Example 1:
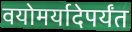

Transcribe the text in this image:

वयोमर्यादेपर्यंत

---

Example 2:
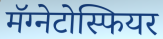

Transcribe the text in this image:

मॅग्नेटोस्फियर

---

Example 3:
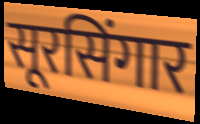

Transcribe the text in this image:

सूरसिंगार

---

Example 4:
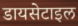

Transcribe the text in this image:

डायसेटाइल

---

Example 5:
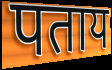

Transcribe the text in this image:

पताय